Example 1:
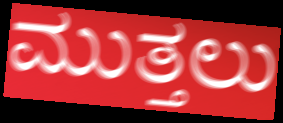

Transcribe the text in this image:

ಮುತ್ತಲು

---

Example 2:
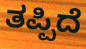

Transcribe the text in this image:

ತಪ್ಪಿದೆ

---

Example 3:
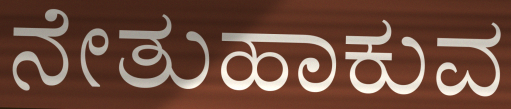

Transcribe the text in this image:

ನೇತುಹಾಕುವ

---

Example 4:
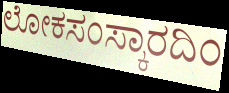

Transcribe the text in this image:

ಲೋಕಸಂಸ್ಕಾರದಿಂ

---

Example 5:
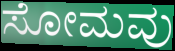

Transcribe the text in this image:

ಸೋಮವು